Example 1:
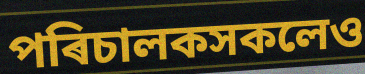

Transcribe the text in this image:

পৰিচালকসকলেও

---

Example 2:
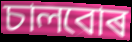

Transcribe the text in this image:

চালবোৰ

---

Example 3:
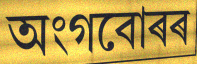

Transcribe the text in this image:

অংগবোৰৰ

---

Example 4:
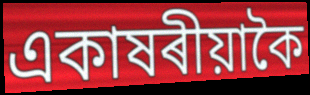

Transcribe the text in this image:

একাষৰীয়াকৈ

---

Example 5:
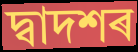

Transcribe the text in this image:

দ্বাদশৰ